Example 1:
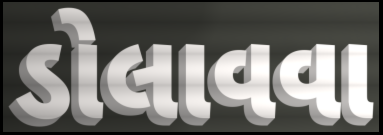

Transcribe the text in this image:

ડોલાવવા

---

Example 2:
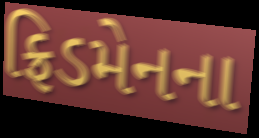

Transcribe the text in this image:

ફ્રિડમેનના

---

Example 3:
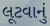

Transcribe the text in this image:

લૂટવાનું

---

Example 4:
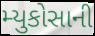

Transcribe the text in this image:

મ્યુકોસાની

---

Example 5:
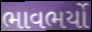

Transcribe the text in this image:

ભાવભર્યો